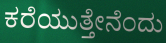
ಕರೆಯುತ್ತೇನೆಂದು